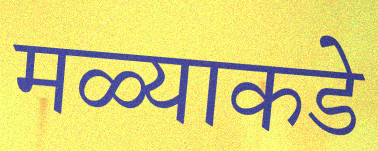
मळ्याकडे